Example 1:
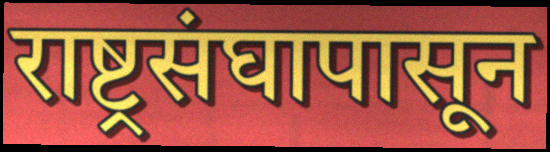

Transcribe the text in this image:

राष्ट्रसंघापासून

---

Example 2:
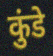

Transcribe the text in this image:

कुंडे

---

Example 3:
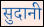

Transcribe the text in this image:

सुदानी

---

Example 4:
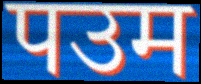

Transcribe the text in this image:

पउम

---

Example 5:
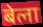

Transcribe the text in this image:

बेला